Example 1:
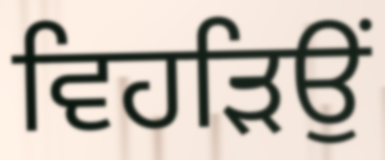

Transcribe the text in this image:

ਵਿਹੜਿਉਂ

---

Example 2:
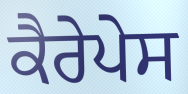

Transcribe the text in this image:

ਕੈਰੇਪੇਸ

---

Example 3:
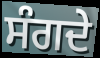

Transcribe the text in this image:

ਸੰਗਦੇ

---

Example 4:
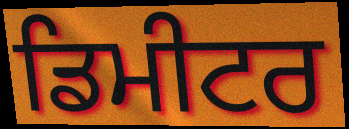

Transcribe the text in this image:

ਡਿਮੀਟਰ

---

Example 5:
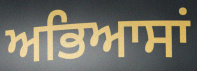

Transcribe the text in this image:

ਅਭਿਆਸਾਂ